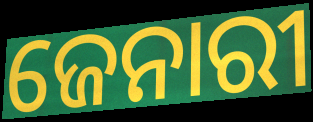
ଜେନାରୀ